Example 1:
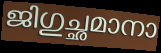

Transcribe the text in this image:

ജിഗുച്ഛമാനാ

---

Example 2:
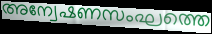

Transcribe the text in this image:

അന്വേഷണസംഘത്തെ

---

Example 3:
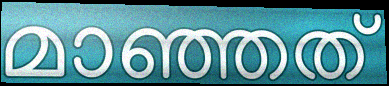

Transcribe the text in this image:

മാഞ്ഞത്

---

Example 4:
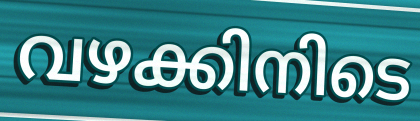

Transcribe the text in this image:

വഴക്കിനിടെ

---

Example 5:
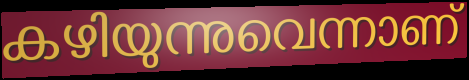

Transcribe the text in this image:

കഴിയുന്നുവെന്നാണ്